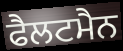
ਫੈਲਟਮੈਨ